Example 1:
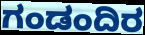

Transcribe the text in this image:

ಗಂಡಂದಿರ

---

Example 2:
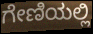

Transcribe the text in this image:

ಗೇಣಿಯಲ್ಲಿ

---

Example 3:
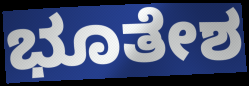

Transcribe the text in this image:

ಭೂತೇಶ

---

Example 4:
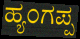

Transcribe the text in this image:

ಹ್ಯಂಗಪ್ಪ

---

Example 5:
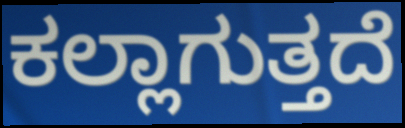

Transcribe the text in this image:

ಕಲ್ಲಾಗುತ್ತದೆ